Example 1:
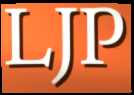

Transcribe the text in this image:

LJP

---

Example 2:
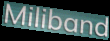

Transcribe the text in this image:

Miliband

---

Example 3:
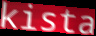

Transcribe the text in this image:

kista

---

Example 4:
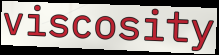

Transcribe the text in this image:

viscosity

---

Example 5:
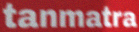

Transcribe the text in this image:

tanmatra